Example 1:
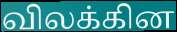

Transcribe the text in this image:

விலக்கின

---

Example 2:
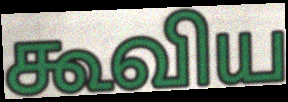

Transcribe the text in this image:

கூவிய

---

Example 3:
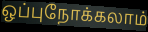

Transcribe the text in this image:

ஒப்புநோக்கலாம்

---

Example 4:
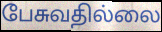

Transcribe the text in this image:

பேசுவதில்லை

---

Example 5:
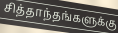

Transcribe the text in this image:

சித்தாந்தங்களுக்கு